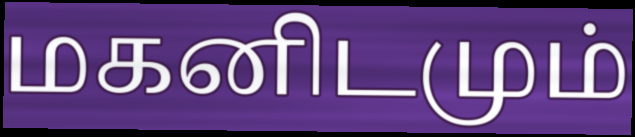
மகனிடமும்